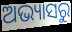
ଅଭ୍ୟାସରୁ